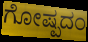
ಗೋಷ್ಪದಂ